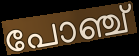
പോഞ്ച്